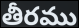
తీరము